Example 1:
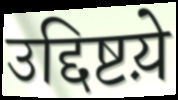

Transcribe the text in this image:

उद्दिष्टय़े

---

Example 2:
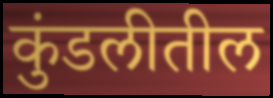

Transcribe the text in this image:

कुंडलीतील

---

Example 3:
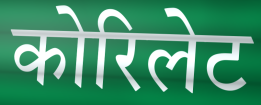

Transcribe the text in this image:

कोरिलेट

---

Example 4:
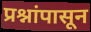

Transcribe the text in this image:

प्रश्नांपासून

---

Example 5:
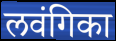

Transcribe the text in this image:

लवंगिका